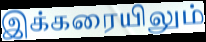
இக்கரையிலும்